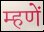
म्हणें